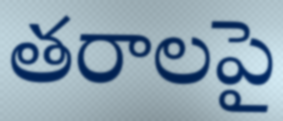
తరాలపై